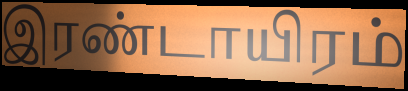
இரண்டாயிரம்